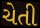
ચેતી